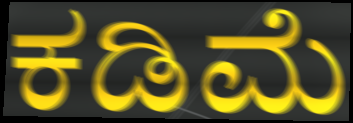
ಕಡಿಮೆ